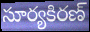
సూర్యకిరణ్